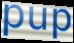
pup